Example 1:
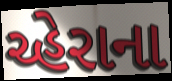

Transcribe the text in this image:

ચ્હેરાના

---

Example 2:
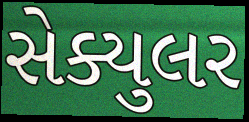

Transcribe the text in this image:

સેક્યુલર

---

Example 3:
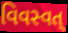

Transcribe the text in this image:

વિવસ્વત્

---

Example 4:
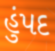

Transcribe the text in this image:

હુંપદ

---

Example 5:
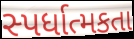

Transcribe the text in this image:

સ્પર્ધાત્મકતા